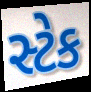
સ્ટેક